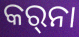
କର୍‌ନା